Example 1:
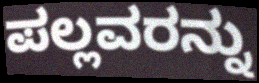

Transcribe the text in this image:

ಪಲ್ಲವರನ್ನು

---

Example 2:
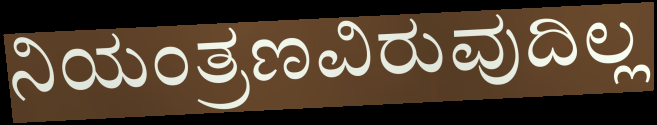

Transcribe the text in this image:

ನಿಯಂತ್ರಣವಿರುವುದಿಲ್ಲ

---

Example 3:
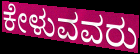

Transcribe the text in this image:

ಕೇಳುವವರು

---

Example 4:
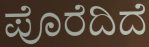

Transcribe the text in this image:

ಪೊರೆದಿದೆ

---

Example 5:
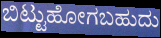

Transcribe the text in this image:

ಬಿಟ್ಟುಹೋಗಬಹುದು